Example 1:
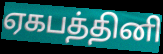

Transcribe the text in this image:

ஏகபத்தினி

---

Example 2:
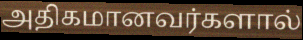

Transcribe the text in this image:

அதிகமானவர்களால்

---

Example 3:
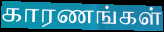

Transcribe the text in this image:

காரணங்கள்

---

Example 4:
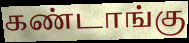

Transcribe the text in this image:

கண்டாங்கு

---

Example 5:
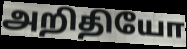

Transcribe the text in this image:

அறிதியோ